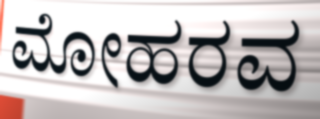
ಮೋಹರವ